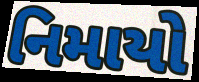
નિમાયો